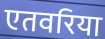
एतवरिया